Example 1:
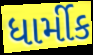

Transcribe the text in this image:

ધાર્મીક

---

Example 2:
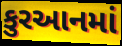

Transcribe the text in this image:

કુરઆનમાં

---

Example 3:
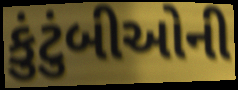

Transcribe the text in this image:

કુંટુંબીઓની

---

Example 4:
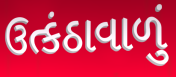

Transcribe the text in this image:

ઉત્કંઠાવાળું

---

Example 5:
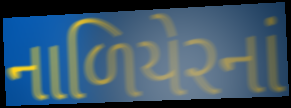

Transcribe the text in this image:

નાળિયેરનાં